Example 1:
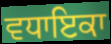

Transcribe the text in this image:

ਵਧਾਇਕਾ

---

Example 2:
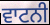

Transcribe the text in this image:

ਵਾਟਨੀ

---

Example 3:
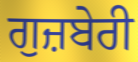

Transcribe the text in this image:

ਗੁਜ਼ਬੇਰੀ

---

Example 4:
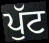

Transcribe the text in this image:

ਪੁੱਟ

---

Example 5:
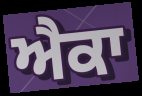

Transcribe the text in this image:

ਐਕਾ